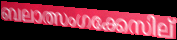
ബലാത്സംഗക്കേസില്